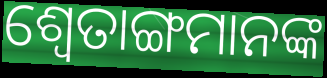
ଶ୍ଵେତାଙ୍ଗମାନଙ୍କ